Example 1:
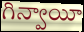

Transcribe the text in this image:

గిన్వాయీ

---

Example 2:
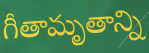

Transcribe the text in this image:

గీతామృతాన్ని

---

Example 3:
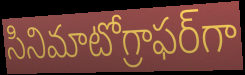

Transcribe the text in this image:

సినిమాటోగ్రాఫర్‌గా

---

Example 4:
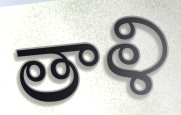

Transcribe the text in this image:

తాళి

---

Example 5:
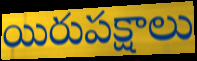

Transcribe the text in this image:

యిరుపక్షాలు